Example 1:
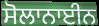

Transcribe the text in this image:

ਸੋਲਾਨਾਈਨ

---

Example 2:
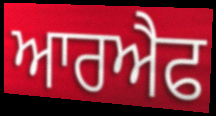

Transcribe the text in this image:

ਆਰਐਫ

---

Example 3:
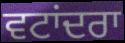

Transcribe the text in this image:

ਵਟਾਂਦਰਾ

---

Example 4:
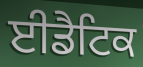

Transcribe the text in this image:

ਈਡੈਟਿਕ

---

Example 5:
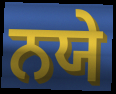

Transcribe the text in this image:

ਨਯੇ